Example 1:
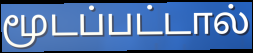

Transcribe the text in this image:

மூடப்பட்டால்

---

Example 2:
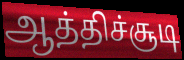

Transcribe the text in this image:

ஆத்திச்சூடி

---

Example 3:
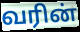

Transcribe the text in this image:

வரின்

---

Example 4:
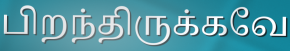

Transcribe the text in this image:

பிறந்திருக்கவே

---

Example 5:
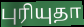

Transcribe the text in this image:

புரியுதா